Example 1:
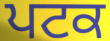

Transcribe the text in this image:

ਪਟਕ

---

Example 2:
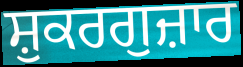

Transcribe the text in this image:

ਸ਼ੁਕਰਗੁਜ਼ਾਰ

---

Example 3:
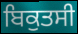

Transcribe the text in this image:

ਬਿਕੁਤਸੀ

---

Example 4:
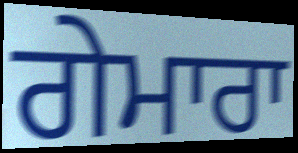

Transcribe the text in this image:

ਗੇਮਾਰਾ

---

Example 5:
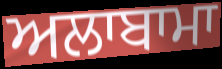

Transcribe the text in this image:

ਅਲਾਬਾਮਾ